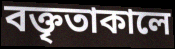
বক্তৃতাকালে